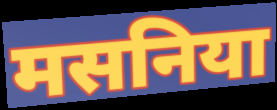
मसनिया